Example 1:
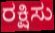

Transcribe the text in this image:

ರಕ್ಷಿಸು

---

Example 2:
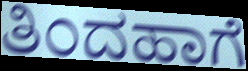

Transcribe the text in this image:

ತಿಂದಹಾಗೆ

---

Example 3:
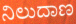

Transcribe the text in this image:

ನಿಲುದಾಣ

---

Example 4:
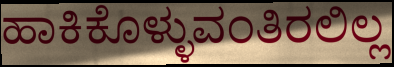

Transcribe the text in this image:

ಹಾಕಿಕೊಳ್ಳುವಂತಿರಲಿಲ್ಲ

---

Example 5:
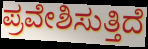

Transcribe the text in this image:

ಪ್ರವೇಶಿಸುತ್ತಿದೆ